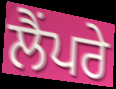
ਲੈਂਪਰੇ